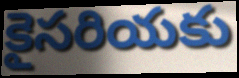
కైసరియకు